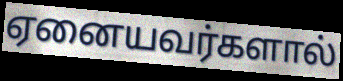
ஏனையவர்களால்